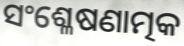
ସଂଶ୍ଳେଷଣାତ୍ମକ